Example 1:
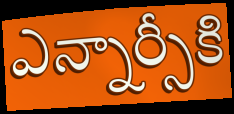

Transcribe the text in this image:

ఎన్నార్సీకి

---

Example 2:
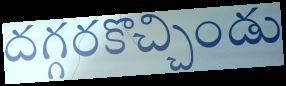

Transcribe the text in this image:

దగ్గరకొచ్చిండు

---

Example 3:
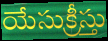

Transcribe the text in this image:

యేసుక్రీస్తు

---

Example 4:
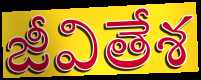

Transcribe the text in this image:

జీవితేశ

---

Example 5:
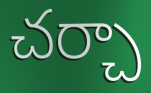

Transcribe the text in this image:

చర్చా